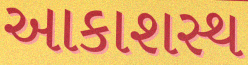
આકાશસ્થ